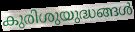
കുരിശുയുദ്ധങ്ങൾ